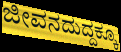
ಜೀವನದುದ್ದಕ್ಕೂ